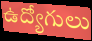
ఉద్యోగులు